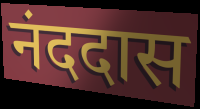
नंददास